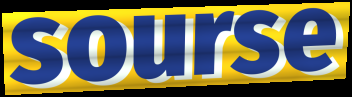
sourse